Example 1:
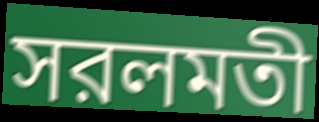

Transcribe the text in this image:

সরলমতী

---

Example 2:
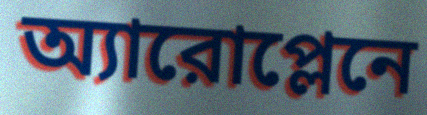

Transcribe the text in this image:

অ্যারোপ্লেনে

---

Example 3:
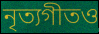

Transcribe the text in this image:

নৃত্যগীতও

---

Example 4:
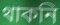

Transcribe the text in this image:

থাকনি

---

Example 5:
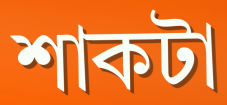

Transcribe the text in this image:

শাকটা